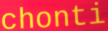
chonti